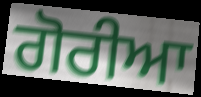
ਗੋਰੀਆ